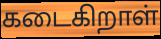
கடைகிறாள்